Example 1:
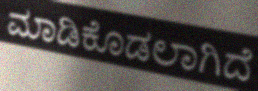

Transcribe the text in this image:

ಮಾಡಿಕೊಡಲಾಗಿದೆ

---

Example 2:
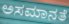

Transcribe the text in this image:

ಅಸಮಾನತೆ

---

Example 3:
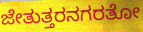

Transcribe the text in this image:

ಜೇತುತ್ತರನಗರತೋ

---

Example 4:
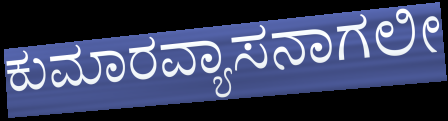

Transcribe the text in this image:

ಕುಮಾರವ್ಯಾಸನಾಗಲೀ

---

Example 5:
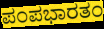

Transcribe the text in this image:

ಪಂಪಭಾರತಂ